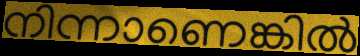
നിന്നാണെങ്കിൽ